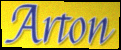
Arton